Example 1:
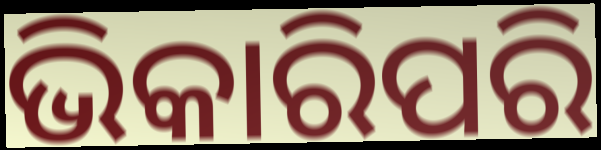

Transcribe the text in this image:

ଭିକାରିପରି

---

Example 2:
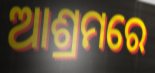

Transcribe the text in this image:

ଆଶ୍ରମରେ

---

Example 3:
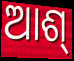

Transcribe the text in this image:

ଆଶ୍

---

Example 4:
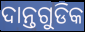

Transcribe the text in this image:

ଦାନ୍ତଗୁଡିକ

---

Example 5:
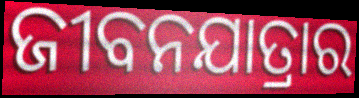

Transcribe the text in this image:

ଜୀବନଯାତ୍ରାର